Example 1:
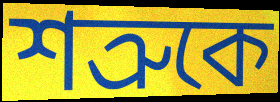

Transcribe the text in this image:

শত্রুকে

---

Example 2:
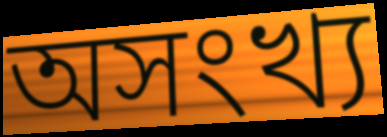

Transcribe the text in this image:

অসংখ্য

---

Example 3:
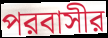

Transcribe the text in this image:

পরবাসীর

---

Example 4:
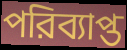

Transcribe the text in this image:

পরিব্যাপ্ত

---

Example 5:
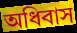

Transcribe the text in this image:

অধিবাস